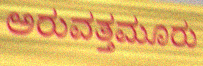
ಅರುವತ್ತಮೂರು